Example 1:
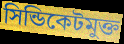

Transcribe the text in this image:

সিন্ডিকেটমুক্ত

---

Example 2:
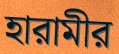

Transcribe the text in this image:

হারামীর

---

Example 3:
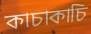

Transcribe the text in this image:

কাচাকাচি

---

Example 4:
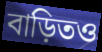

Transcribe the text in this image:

বাড়িতও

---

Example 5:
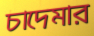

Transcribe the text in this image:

চাদেমার